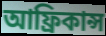
আফ্ৰিকান্স